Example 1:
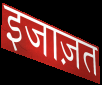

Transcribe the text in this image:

इजाज़त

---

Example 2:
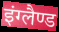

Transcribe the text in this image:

इंग्‍लैण्‍ड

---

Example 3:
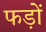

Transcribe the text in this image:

फड़ों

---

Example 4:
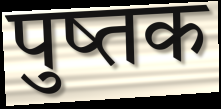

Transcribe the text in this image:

पुष्तक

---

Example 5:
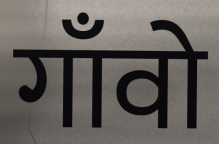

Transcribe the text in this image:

गाँवो